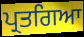
ਪ੍ਰਤਗਿਆ